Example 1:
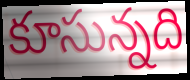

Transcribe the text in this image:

కూసున్నది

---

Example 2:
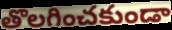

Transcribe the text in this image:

తొలగించకుండా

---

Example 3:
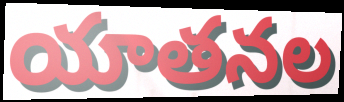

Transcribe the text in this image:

యాతనల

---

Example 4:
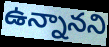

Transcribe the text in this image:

ఉన్నానని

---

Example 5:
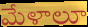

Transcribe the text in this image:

మేళాలూ